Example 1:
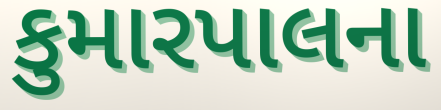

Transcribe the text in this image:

કુમારપાલના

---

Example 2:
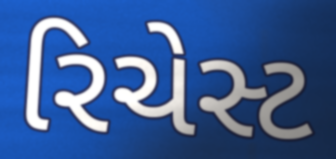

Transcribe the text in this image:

રિચેસ્ટ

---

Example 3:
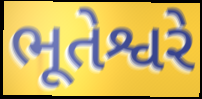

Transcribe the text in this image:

ભૂતેશ્વરે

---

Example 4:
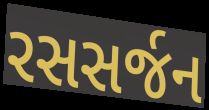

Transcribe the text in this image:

રસસર્જન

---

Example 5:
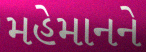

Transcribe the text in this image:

મહેમાનને